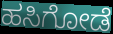
ಹಸಿಗೋಡೆ